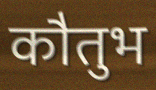
कौतुभ